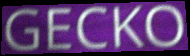
GECKO